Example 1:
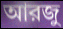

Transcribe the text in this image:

আরজু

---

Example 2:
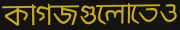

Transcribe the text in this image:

কাগজগুলোতেও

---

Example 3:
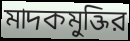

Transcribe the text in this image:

মাদকমুক্তির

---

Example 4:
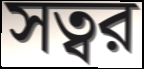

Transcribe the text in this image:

সত্বর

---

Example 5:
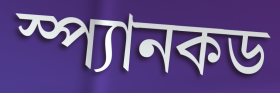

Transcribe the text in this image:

স্প্যানকড